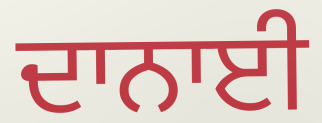
ਦਾਨਾਈ